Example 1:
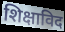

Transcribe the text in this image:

शिक्षाविद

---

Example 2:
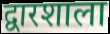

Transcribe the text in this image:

द्वारशाला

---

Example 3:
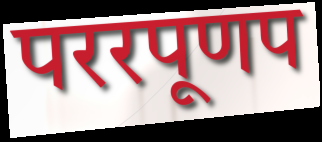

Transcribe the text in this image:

पररपूणप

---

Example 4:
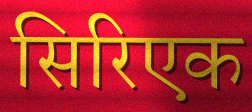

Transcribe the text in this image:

सिरिएक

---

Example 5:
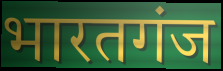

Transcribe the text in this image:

भारतगंज